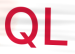
QL